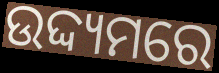
ଉଦ୍ଦ୍ୟମରେ